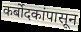
कर्बोदकांपासून